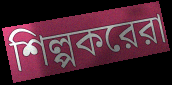
শিল্পকরেরা